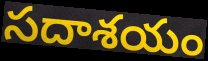
సదాశయం